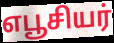
எபூசியர்